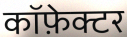
कॉफ़ेक्टर